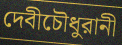
দেবীচৌধুরানী